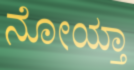
ನೋಯ್ತಾ